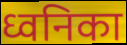
ध्वनिका